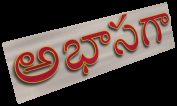
అభాసగా